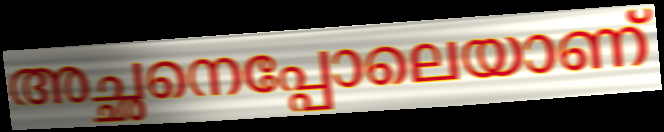
അച്ഛനെപ്പോലെയാണ്